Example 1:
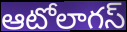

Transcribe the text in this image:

ఆటోలాగస్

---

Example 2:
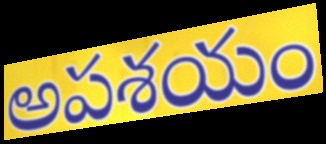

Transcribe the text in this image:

అపశయం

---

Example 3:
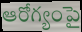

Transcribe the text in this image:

ఆరోగ్యంపై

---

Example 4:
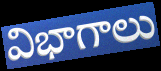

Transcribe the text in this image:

విభాగాలు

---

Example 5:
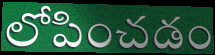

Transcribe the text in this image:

లోపించడం